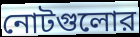
নোটগুলোর